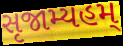
સૃજામ્યહમ્